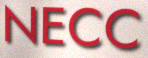
NECC